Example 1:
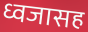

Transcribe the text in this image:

ध्वजासह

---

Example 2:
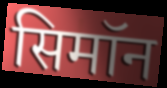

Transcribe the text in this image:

सिमॉन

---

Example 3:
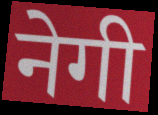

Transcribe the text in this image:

नेगी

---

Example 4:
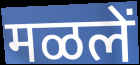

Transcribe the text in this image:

मळलें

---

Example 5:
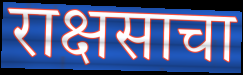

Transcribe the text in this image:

राक्षसाचा